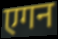
एगन